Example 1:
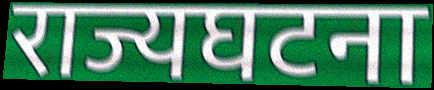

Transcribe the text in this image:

राज्यघटना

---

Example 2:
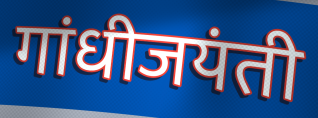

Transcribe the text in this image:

गांधीजयंती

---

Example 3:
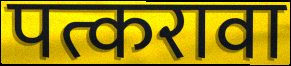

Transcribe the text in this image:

पत्करावा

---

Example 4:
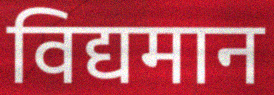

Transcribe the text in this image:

विद्यमान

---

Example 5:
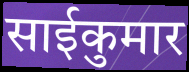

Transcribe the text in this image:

साईकुमार